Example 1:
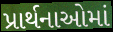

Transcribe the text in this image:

પ્રાર્થનાઓમાં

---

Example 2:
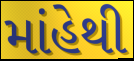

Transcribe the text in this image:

માંહેથી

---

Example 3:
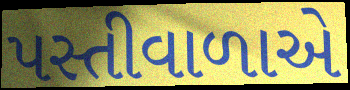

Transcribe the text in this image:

પસ્તીવાળાએ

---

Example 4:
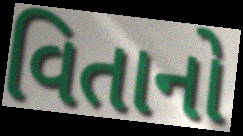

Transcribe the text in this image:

વિતાનો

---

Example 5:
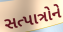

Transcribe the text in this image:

સત્પાત્રોને